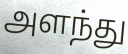
அளந்து